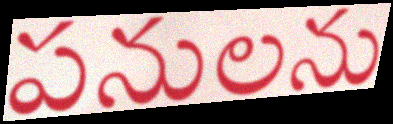
పనులను